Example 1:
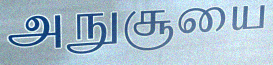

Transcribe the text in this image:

அநுசூயை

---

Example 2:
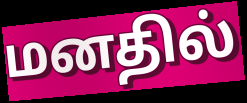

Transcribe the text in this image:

மனதில்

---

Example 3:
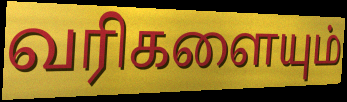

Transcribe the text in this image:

வரிகளையும்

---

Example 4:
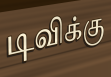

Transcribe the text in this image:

டிவிக்கு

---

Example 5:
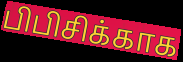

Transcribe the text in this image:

பிபிசிக்காக